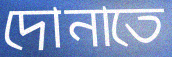
দোনাতে